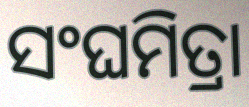
ସଂଘମିତ୍ରା